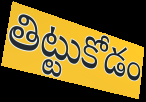
తిట్టుకోడం